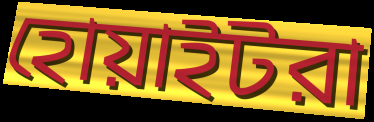
হোয়াইটরা